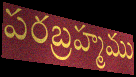
పరబ్రహ్మము